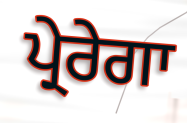
ਪ੍ਰੇਰੇਗਾ